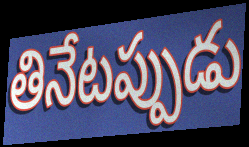
తినేటప్పుడు